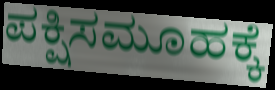
ಪಕ್ಷಿಸಮೂಹಕ್ಕೆ